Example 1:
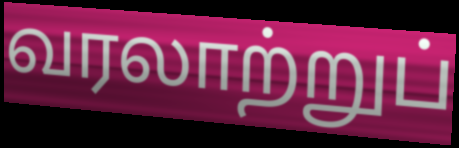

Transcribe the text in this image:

வரலாற்றுப்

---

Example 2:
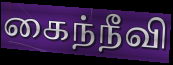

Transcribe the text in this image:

கைந்நீவி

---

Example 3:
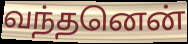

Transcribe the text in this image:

வந்தனென்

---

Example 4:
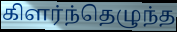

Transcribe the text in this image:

கிளர்ந்தெழுந்த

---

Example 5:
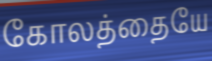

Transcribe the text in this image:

கோலத்தையே